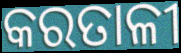
କରତାଳୀ